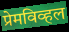
प्रेमविव्हल